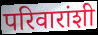
परिवारांशी